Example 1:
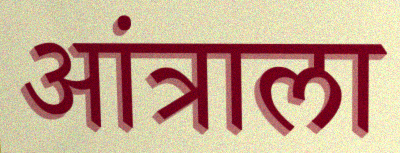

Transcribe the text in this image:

आंत्राला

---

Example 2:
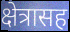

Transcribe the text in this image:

क्षेत्रासह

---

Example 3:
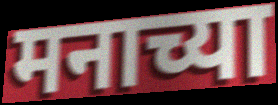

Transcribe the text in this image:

मनाच्या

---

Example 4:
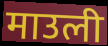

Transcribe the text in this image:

माउली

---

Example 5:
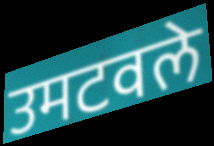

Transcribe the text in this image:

उमटवले